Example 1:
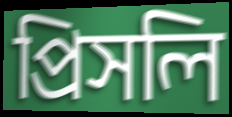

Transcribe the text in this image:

প্রিসলি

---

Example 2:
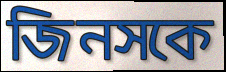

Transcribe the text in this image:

জিনসকে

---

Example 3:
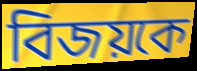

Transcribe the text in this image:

বিজয়কে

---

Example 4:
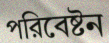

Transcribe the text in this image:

পরিবেষ্টন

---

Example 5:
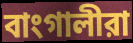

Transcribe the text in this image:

বাংগালীরা